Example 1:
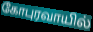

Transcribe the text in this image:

கோபுரவாயில்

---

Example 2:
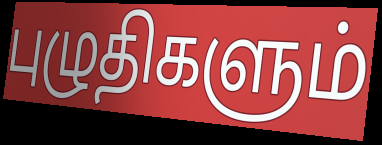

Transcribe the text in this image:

புழுதிகளும்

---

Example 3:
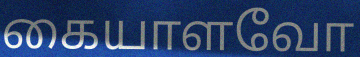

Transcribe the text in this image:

கையாளவோ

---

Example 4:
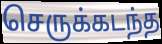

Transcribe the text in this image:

செருக்கடந்த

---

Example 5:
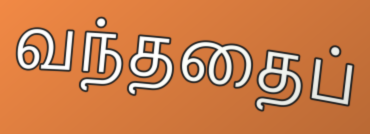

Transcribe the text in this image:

வந்ததைப்